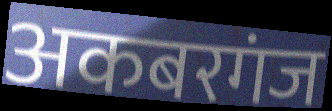
अकबरगंज